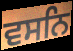
ਵਸਨਿ